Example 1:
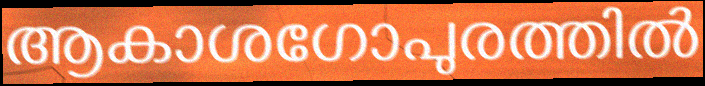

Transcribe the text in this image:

ആകാശഗോപുരത്തിൽ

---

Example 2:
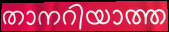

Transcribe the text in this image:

താനറിയാത്ത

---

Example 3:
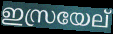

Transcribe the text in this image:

ഇസ്രയേല്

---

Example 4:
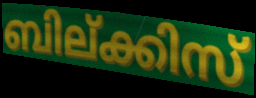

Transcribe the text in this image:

ബില്ക്കിസ്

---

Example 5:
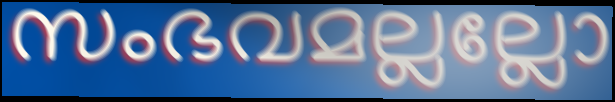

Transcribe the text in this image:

സംഭവമല്ലല്ലോ